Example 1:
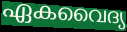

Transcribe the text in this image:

ഏകവൈദ്യ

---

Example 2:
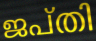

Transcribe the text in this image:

ജപ്‌തി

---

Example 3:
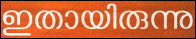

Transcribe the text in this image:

ഇതായിരുന്നു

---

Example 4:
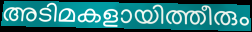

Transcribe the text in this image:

അടിമകളായിത്തീരും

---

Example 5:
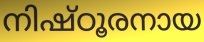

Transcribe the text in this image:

നിഷ്ഠൂരനായ